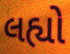
લહ્યો